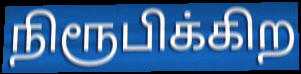
நிரூபிக்கிற